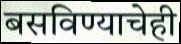
बसविण्याचेही